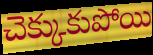
చెక్కుకుపోయి